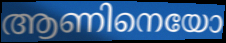
ആണിനെയോ